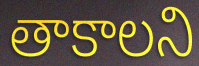
తాకాలని